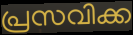
പ്രസവിക്ക